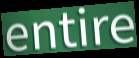
entire